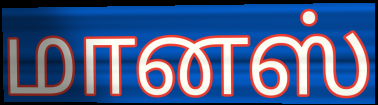
மானஸ்